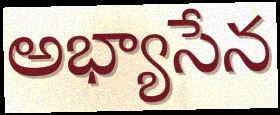
అభ్యాసేన